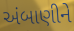
અંબાણીને